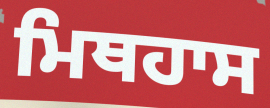
ਮਿਥਹਾਸ